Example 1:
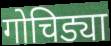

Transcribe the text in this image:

गोचिड्या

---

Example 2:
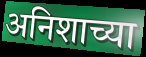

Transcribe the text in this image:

अनिशाच्या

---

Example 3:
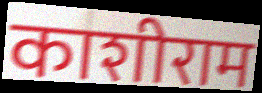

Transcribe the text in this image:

काशीराम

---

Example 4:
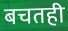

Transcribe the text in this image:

बचतही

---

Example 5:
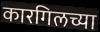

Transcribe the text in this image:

कारगिलच्या